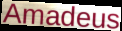
Amadeus